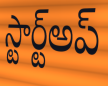
స్టార్ట్అప్